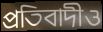
প্রতিবাদীও